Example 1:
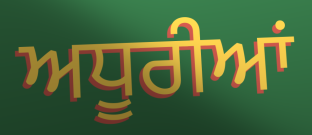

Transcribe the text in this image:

ਅਧੂਰੀਆਂ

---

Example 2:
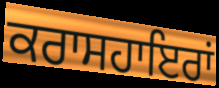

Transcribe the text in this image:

ਕਰਾਸਹਾਇਰਾਂ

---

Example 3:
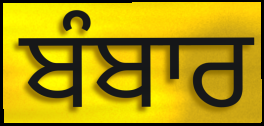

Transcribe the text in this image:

ਬੰਬਾਰ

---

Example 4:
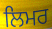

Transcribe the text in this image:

ਲਿਮਰ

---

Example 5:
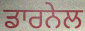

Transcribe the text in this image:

ਡਾਰਨੇਲ